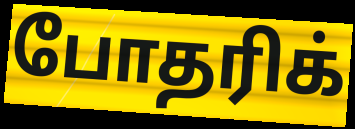
போதரிக்